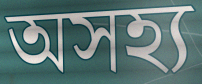
অসহ্য